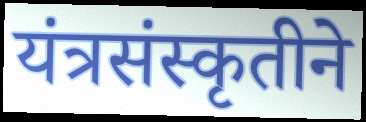
यंत्रसंस्कृतीने